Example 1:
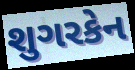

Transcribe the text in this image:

શુગરકેન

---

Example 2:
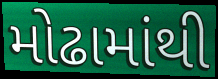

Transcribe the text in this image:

મોઢામાંથી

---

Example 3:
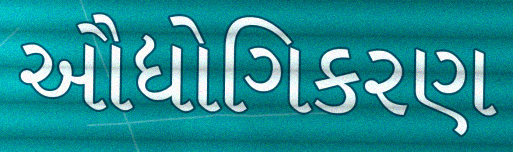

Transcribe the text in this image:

ઔદ્યોગિકરણ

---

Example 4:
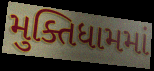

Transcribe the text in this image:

મુક્તિધામમાં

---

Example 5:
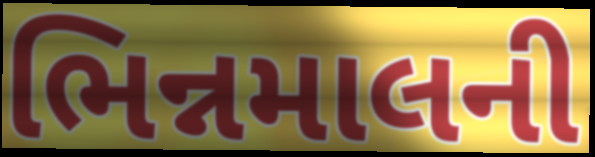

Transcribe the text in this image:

ભિન્નમાલની